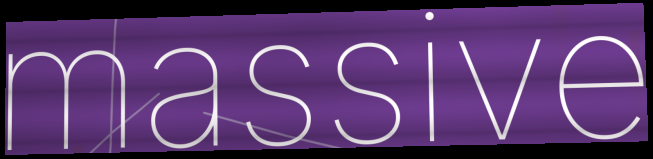
massive